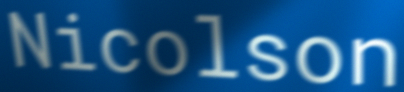
Nicolson